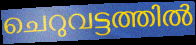
ചെറുവട്ടത്തിൽ